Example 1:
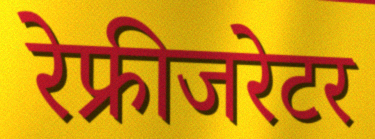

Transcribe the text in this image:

रेफ्रीजरेटर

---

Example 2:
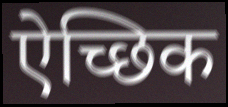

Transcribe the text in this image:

ऐच्छिक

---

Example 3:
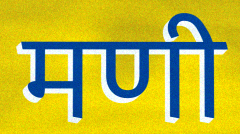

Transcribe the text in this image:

मणी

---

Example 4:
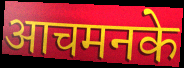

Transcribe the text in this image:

आचमनके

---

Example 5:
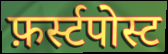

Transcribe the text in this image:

फ़र्स्टपोस्ट